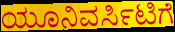
ಯೂನಿವರ್ಸಿಟಿಗೆ